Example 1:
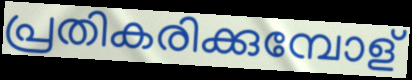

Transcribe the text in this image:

പ്രതികരിക്കുമ്പോള്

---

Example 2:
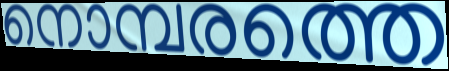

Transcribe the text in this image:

നൊമ്പരത്തെ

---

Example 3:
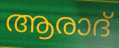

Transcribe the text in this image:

ആരാദ്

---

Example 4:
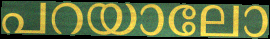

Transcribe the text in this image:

പറയാലോ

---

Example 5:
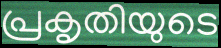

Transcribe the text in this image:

പ്രകൃതിയുടെ